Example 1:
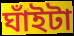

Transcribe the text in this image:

ঘাঁইটা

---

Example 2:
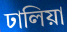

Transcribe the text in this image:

ঢালিয়া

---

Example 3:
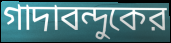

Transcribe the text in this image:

গাদাবন্দুকের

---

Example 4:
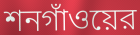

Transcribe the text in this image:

শনগাঁওয়ের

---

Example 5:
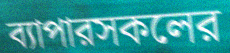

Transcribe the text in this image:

ব্যাপারসকলের